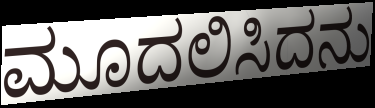
ಮೂದಲಿಸಿದನು